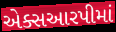
એક્સઆરપીમાં